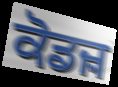
ਕੋਡਜ਼